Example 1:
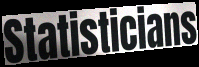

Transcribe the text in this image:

Statisticians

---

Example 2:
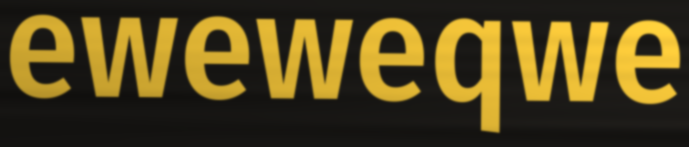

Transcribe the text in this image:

eweweqwe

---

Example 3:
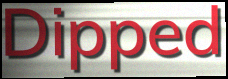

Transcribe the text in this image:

Dipped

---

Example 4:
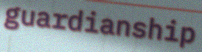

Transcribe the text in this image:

guardianship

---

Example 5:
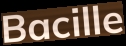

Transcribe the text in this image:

Bacille